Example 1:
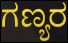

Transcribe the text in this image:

ಗಣ್ಯರ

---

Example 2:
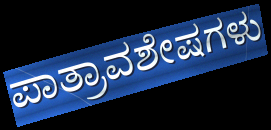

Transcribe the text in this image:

ಪಾತ್ರಾವಶೇಷಗಳು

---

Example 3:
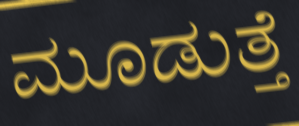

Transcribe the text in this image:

ಮೂಡುತ್ತೆ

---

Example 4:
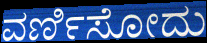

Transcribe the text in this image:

ವರ್ಣಿಸೋದು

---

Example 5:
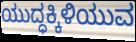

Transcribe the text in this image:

ಯುದ್ಧಕ್ಕಿಳಿಯುವ